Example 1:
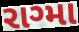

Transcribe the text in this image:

રાગ્મા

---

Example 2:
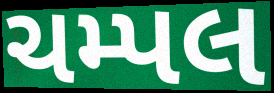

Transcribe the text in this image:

ચમ્પલ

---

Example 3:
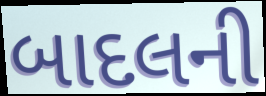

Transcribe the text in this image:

બાદલની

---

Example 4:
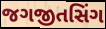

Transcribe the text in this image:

જગજીતસિંગ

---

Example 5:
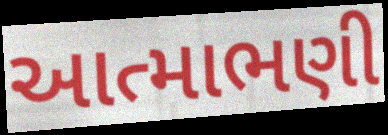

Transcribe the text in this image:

આત્માભણી